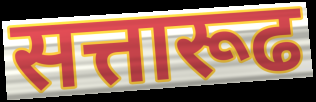
सत्तारूढ